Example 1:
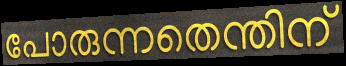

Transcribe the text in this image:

പോരുന്നതെന്തിന്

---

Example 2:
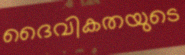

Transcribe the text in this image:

ദൈവികതയുടെ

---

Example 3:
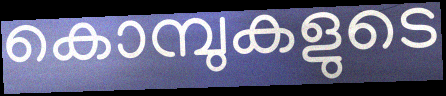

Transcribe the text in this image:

കൊമ്പുകളുടെ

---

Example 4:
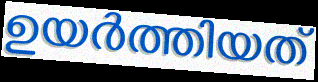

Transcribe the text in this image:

ഉയർത്തിയത്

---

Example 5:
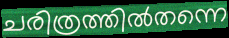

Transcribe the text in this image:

ചരിത്രത്തിൽതന്നെ